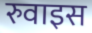
रुवाइस